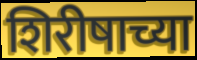
शिरीषाच्या